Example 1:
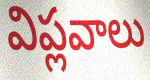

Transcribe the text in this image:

విప్లవాలు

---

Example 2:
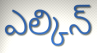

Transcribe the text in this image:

ఎల్కిన్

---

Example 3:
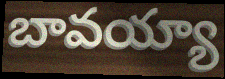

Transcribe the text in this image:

బావయ్యా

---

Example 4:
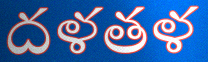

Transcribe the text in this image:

దళతళ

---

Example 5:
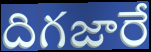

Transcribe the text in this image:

దిగజారే